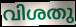
വിശതു